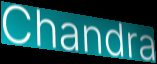
Chandra